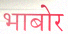
भाबोर